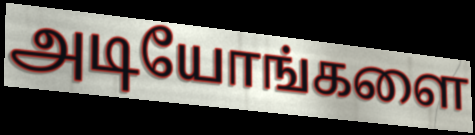
அடியோங்களை